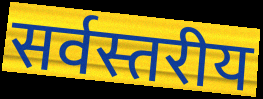
सर्वस्तरीय